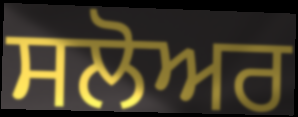
ਸਲੋਅਰ